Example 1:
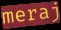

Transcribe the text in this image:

meraj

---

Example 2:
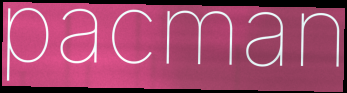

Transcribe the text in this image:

pacman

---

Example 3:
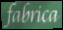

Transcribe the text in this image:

fabrica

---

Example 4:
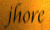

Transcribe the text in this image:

jhore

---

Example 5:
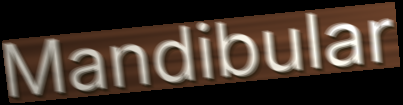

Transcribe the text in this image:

Mandibular